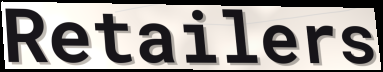
Retailers